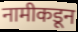
नामीकडून